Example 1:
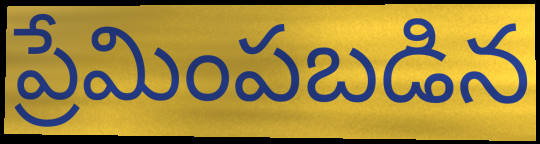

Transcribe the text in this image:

ప్రేమింపబడిన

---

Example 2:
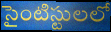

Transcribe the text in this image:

సైంటిస్టులలో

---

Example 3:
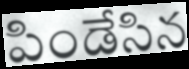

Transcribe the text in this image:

పిండేసిన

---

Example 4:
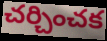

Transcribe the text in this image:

చర్చించక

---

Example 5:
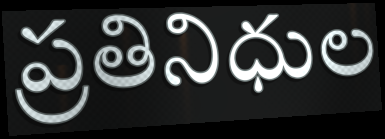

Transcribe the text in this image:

ప్రతినిధుల